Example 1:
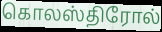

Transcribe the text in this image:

கொலஸ்திரோல்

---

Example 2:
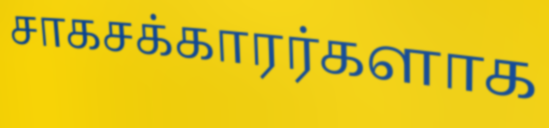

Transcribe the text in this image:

சாகசக்காரர்களாக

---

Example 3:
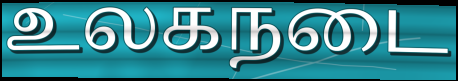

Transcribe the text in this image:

உலகநடை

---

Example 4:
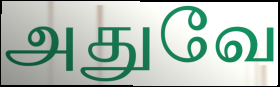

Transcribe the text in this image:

அதுவே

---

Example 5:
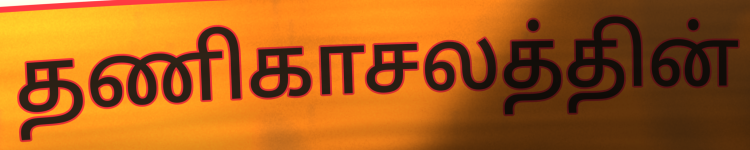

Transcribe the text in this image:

தணிகாசலத்தின்